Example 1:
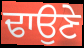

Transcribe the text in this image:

ਢਾਉਣੇ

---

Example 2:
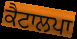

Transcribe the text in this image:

ਕੈਟਾਲਪਾ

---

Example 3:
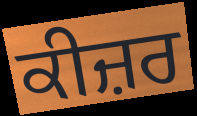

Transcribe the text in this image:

ਕੀਜ਼ਰ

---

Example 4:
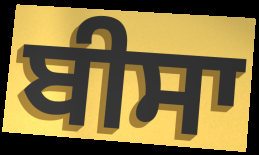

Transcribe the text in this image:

ਬੀਸਾ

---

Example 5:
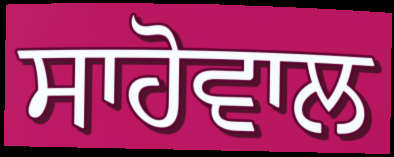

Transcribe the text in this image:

ਸਾਹੋਵਾਲ